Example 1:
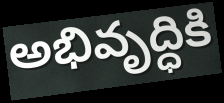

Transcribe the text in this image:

అభివృద్ధికి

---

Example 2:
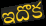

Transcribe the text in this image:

ఇదొక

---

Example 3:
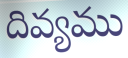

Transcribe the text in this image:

దివ్యము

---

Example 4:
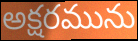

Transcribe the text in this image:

అక్షరమును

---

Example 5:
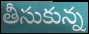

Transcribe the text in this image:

తీసుకున్న